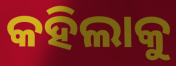
କହିଲାକୁ